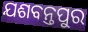
ଯଶବନ୍ତପୁର